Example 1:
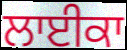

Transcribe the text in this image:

ਲਾਈਕਾ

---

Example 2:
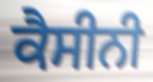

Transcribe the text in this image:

ਕੈਸੀਨੀ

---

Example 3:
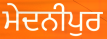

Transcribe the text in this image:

ਮੇਦਨੀਪੁਰ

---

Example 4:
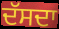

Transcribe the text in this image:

ਦੱਸਦਾ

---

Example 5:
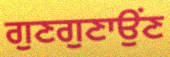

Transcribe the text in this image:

ਗੁਣਗੁਣਾਉਂਣ